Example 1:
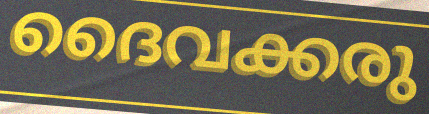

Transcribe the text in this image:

ദൈവക്കരു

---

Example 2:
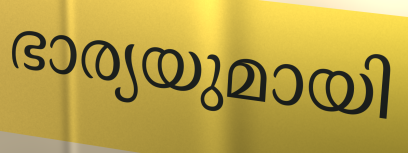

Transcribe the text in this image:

ഭാര്യയുമായി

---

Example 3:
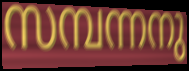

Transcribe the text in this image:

സമ്പന്നനു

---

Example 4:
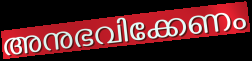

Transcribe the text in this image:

അനുഭവിക്കേണം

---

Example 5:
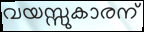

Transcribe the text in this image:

വയസ്സുകാരന്